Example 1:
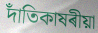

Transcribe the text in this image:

দাঁতিকাষৰীয়া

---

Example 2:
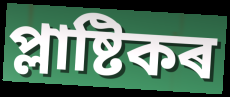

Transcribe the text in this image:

প্লাষ্টিকৰ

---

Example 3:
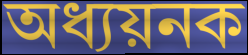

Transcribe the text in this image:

অধ্যয়নক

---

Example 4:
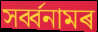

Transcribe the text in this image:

সৰ্ব্বনামৰ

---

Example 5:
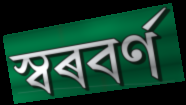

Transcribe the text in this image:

স্বৰবৰ্ণ